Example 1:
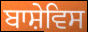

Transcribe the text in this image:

ਬਾਸ਼ੇਵਿਸ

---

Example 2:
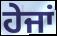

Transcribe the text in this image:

ਹੇਜਾਂ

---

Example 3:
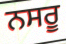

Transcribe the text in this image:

ਨਸਰੂ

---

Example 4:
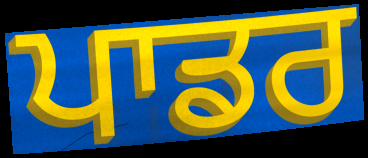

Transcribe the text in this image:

ਪਾਡਰ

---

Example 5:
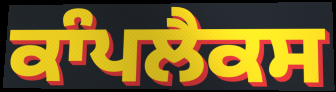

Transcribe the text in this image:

ਕਾੰਪਲੈਕਸ